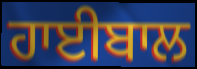
ਹਾਈਬਾਲ